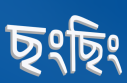
ছংছিং